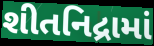
શીતનિદ્રામાં